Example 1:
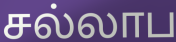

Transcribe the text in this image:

சல்லாப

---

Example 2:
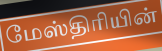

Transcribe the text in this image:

மேஸ்திரியின்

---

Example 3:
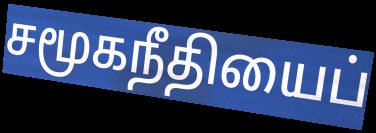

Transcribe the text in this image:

சமூகநீதியைப்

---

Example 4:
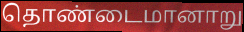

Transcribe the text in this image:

தொண்டைமானாறு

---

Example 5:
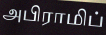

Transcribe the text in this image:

அபிராமிப்